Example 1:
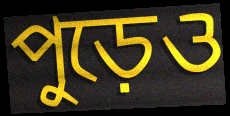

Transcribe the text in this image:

পুড়েও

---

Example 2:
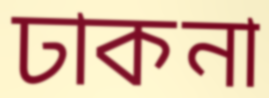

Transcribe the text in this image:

ঢাকনা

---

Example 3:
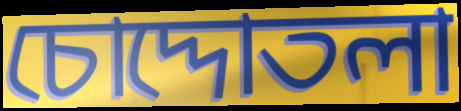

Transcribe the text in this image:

চোদ্দোতলা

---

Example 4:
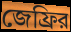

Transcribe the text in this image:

জেফ্রির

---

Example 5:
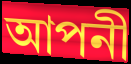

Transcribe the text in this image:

আপনী